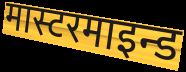
मास्टरमाइन्ड